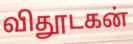
விதூடகன்